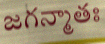
జగన్మాతః